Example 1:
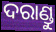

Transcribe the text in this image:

ଦରାଣ୍ଡୁ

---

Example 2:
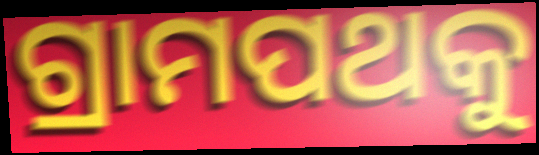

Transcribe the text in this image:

ଗ୍ରାମପଥକୁ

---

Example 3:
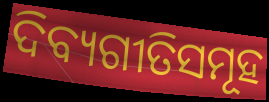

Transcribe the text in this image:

ଦିବ୍ୟଗୀତିସମୂହ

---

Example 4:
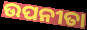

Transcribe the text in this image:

ଉପନୀତା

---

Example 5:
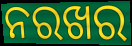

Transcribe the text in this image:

ନରଖର